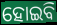
ହୋଇବି